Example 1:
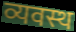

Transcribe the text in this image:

व्यवस्थ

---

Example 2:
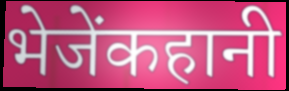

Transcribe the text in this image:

भेजेंकहानी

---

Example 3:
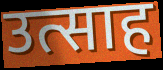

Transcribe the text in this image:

उत्साह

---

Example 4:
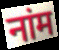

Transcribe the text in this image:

नांम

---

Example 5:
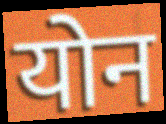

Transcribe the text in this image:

योन